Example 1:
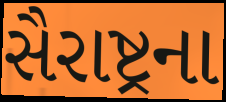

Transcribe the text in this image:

સૈરાષ્ટ્રના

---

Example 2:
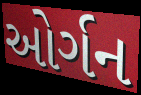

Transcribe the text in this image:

ઓર્ગન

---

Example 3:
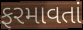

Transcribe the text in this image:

ફરમાવતાં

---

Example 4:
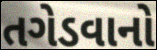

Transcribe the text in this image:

તગેડવાનો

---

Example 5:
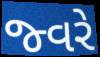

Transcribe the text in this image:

જ્વરે